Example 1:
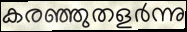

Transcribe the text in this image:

കരഞ്ഞുതളർന്നു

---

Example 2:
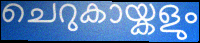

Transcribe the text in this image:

ചെറുകായ്കളും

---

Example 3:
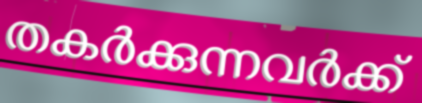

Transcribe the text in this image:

തകർക്കുന്നവർക്ക്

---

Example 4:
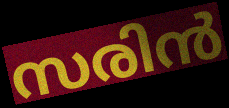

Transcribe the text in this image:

സരിൻ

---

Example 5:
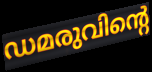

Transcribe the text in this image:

ഡമരുവിന്റെ